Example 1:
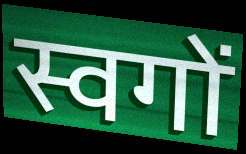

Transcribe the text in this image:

स्वगों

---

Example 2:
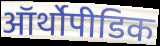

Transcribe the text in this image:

ऑर्थोपीडिक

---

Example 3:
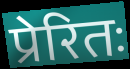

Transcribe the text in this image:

प्रेरितः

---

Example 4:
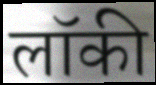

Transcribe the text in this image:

लॉकी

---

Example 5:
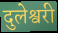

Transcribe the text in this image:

दुलेश्वरी